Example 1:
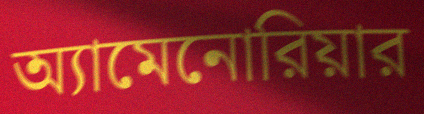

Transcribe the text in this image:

অ্যামেনোরিয়ার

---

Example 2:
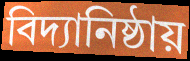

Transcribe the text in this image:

বিদ্যানিষ্ঠায়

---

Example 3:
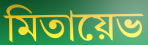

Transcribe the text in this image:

মিতায়েভ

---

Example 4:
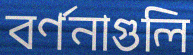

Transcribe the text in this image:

বর্ণনাগুলি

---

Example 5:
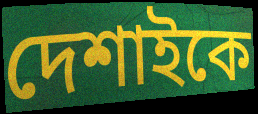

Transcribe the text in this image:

দেশাইকে